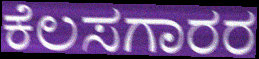
ಕೆಲಸಗಾರರ